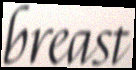
breast